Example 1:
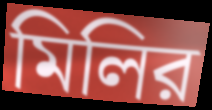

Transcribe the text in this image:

মিলির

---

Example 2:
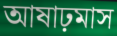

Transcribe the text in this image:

আষাঢ়মাস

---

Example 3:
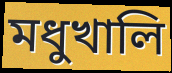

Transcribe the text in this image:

মধুখালি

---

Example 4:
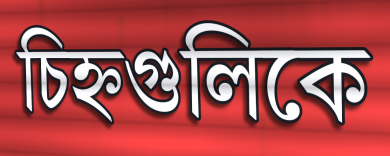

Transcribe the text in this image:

চিহ্নগুলিকে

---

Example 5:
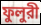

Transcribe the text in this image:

ফুলুরী